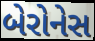
બેરોનેસ